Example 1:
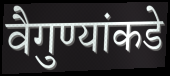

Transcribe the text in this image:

वैगुण्यांकडे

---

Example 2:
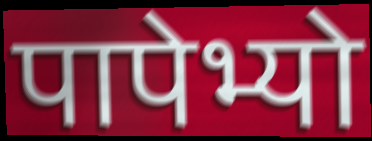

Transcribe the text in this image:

पापेभ्यो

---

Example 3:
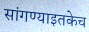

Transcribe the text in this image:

सांगण्याइतकेच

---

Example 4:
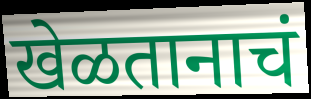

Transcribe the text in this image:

खेळतानाचं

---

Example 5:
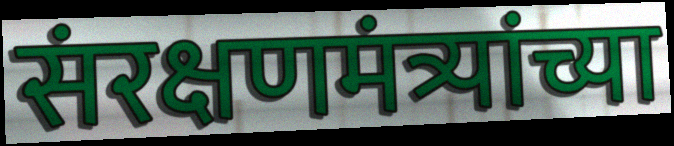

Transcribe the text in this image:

संरक्षणमंत्र्यांच्या